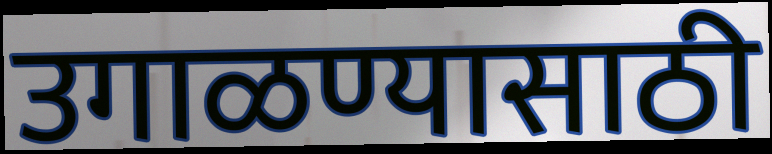
उगाळण्यासाठी